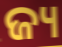
ଜ୍ୟ